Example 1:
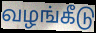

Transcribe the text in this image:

வழங்கீடு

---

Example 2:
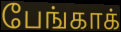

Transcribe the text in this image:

பேங்காக்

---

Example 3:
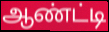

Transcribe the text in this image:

ஆண்ட்டி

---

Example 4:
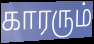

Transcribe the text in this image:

காரரும்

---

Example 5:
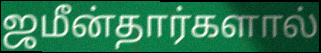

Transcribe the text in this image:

ஜமீன்தார்களால்